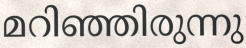
മറിഞ്ഞിരുന്നു